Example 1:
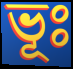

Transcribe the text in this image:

ভূঃ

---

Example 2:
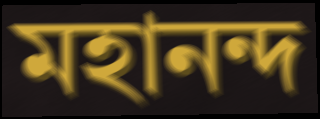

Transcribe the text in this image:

মহানন্দ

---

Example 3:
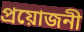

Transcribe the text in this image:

প্রয়োজনী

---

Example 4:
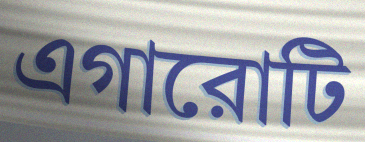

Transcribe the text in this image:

এগারোটি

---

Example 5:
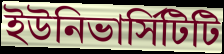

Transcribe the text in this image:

ইউনিভার্সিটিটি